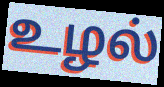
உழல்